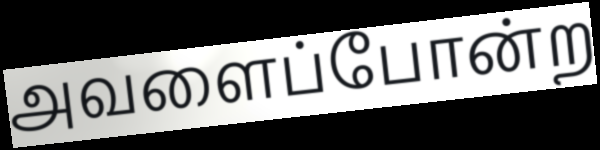
அவளைப்போன்ற